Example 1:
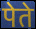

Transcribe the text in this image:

पेते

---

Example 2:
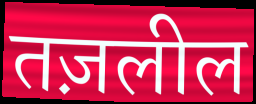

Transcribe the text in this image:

तज़लील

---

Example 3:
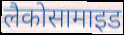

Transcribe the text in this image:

लैकोसामाइड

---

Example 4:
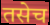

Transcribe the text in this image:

तसेच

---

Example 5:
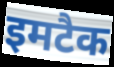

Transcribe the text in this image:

इमटैक